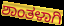
ಶಾಂತಳಾಗಿ